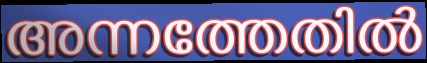
അന്നത്തേതിൽ